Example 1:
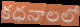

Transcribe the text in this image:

కధనాలలో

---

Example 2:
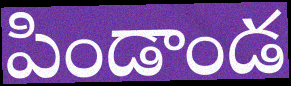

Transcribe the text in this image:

పిండాండ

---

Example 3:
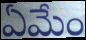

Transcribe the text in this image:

ఏమేం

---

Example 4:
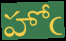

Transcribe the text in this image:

హోఁ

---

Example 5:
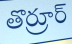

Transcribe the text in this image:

తొర్రూర్